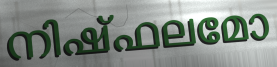
നിഷ്ഫലമോ